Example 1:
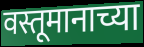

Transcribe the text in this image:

वस्तूमानाच्या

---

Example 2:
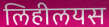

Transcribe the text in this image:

लिहीलयस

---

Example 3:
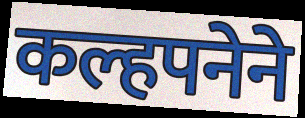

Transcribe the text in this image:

कल्हपनेने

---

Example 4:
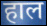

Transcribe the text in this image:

हाल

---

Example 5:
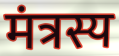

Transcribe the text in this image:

मंत्रस्य